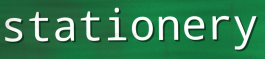
stationery